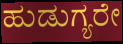
ಹುಡುಗ್ಯರೇ